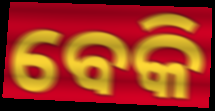
ବେକି